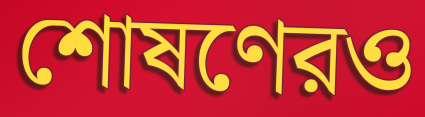
শোষণেরও